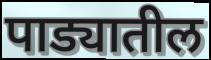
पाड्यातील